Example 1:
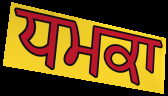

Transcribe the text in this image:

ਧਮਕਾ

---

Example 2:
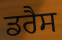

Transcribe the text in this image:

ਡਰੈਸ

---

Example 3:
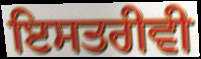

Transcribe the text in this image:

ਇਸਤਰੀਵੀ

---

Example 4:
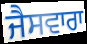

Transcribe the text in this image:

ਜੈਸਵਾਰਾ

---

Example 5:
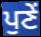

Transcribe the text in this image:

ਪੁਣੇਂ